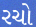
રચો